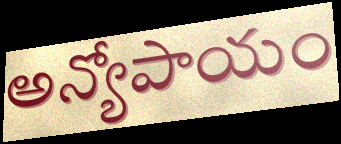
అన్యోపాయం